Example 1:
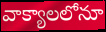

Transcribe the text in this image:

వాక్యాలలోనూ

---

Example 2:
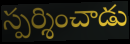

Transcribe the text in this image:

స్పర్శించాడు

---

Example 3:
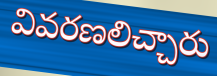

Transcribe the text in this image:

వివరణలిచ్చారు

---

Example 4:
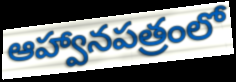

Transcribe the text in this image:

ఆహ్వానపత్రంలో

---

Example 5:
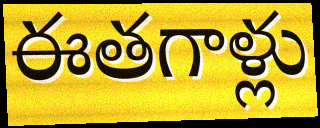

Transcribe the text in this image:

ఈతగాళ్లు